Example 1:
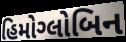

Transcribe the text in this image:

હિમોગ્લોબિન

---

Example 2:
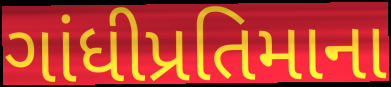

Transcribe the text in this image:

ગાંધીપ્રતિમાના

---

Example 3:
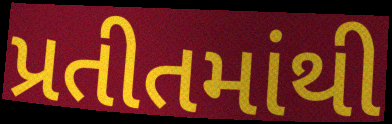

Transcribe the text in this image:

પ્રતીતમાંથી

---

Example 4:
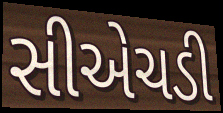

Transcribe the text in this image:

સીએચડી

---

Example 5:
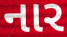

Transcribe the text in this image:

નાર